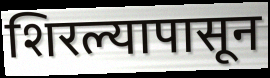
शिरल्यापासून